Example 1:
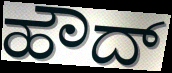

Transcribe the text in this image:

ಹೌದ್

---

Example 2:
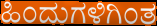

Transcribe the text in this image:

ಹಿಂದುಗಳಿಗಿಂತ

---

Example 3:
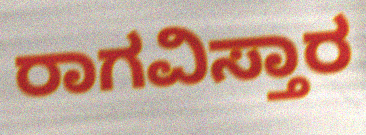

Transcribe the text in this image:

ರಾಗವಿಸ್ತಾರ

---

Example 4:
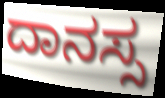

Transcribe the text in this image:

ದಾನಸ್ಸ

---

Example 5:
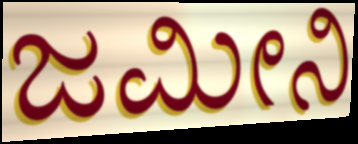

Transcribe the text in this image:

ಜಮೀನಿ